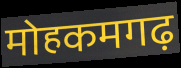
मोहकमगढ़